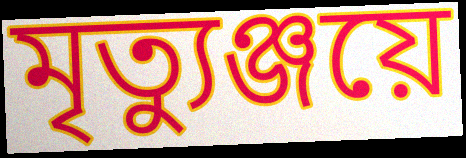
মৃত্যুঞ্জয়ে